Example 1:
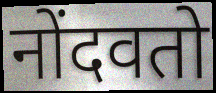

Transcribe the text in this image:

नोंदवतो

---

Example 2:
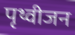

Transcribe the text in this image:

पृथ्वीजन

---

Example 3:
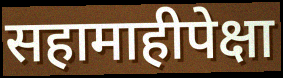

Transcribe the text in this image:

सहामाहीपेक्षा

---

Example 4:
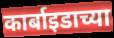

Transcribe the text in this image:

कार्बाइडाच्या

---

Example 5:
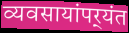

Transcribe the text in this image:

व्यवसायांपर्यंत